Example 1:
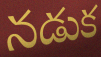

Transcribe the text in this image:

నడుక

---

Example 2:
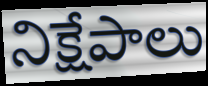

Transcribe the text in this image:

నిక్షేపాలు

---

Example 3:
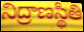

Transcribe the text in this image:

నిద్రాణస్థితి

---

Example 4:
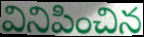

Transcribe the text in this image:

వినిపించిన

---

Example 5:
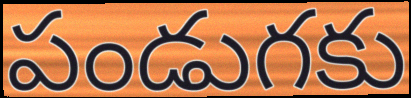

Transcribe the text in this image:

పండుగకు